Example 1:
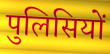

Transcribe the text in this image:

पुलिसियों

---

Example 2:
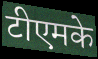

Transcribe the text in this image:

टीएमके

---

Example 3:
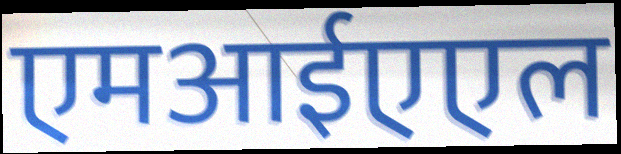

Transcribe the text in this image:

एमआईएएल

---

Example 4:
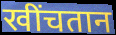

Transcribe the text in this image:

खींचतान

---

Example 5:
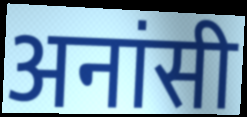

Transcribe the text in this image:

अनांसी